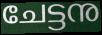
ചേട്ടനു